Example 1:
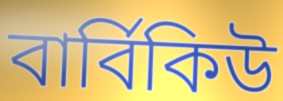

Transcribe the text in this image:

বাৰ্বিকিউ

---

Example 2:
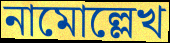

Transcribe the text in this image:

নামোল্লেখ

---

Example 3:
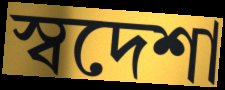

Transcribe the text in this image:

স্বদেশা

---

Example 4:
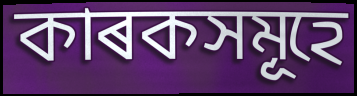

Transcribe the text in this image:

কাৰকসমূহে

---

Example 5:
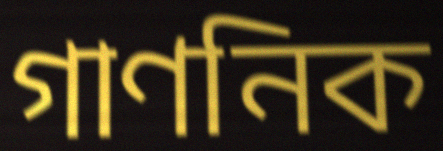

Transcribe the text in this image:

গাণনিক